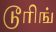
டூரிங்